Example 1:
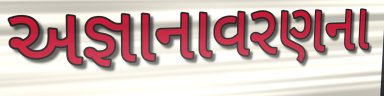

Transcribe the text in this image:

અજ્ઞાનાવરણના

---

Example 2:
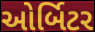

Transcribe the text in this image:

ઓર્બિટર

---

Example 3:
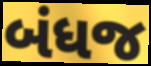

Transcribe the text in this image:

બંધજ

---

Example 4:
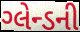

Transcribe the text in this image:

ગ્લેન્ડની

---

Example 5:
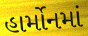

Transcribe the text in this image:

હાર્મોનમાં